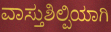
ವಾಸ್ತುಶಿಲ್ಪಿಯಾಗಿ